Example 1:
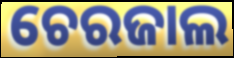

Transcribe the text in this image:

ଚେରଜାଲ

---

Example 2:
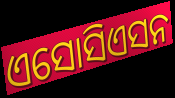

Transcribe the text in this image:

ଏସୋସିଏସନ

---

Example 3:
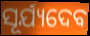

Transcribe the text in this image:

ସୂର୍ଯ୍ୟଦେବ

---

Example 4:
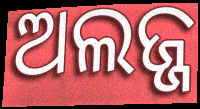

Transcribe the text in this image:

ଅଲଜ୍ଜ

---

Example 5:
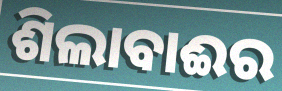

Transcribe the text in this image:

ଶିଲାବାଈର